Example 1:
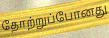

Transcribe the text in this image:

தோற்றுப்போனது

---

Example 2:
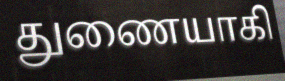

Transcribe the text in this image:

துணையாகி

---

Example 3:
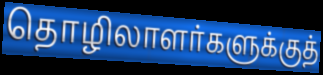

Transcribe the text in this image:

தொழிலாளர்களுக்குத்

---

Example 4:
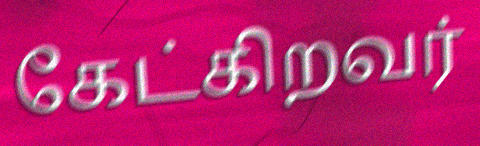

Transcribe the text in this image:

கேட்கிறவர்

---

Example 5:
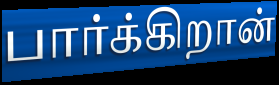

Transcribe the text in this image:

பார்க்கிறான்